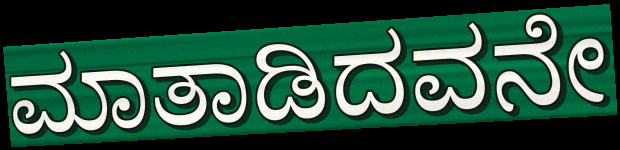
ಮಾತಾಡಿದವನೇ